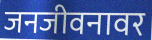
जनजीवनावर